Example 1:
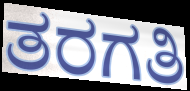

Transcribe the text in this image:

ತರಗತಿ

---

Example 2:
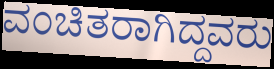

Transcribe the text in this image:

ವಂಚಿತರಾಗಿದ್ದವರು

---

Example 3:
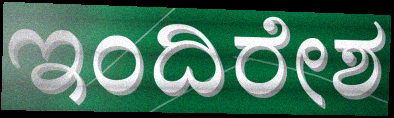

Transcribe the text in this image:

ಇಂದಿರೇಶ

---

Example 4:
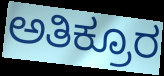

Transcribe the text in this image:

ಅತಿಕ್ರೂರ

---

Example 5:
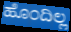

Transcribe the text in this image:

ಹೊಂದಿಲ್ಲ